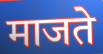
माजते